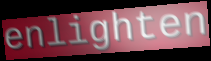
enlighten